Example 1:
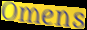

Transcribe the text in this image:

Omens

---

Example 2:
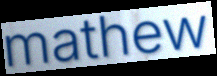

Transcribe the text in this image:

mathew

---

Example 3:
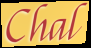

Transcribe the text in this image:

Chal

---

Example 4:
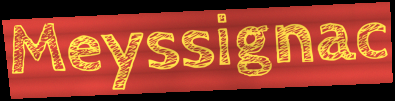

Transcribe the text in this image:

Meyssignac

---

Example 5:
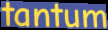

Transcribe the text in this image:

tantum